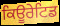
ਕਿਊਰੇਟਿਡ